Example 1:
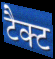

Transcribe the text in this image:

टैक्ट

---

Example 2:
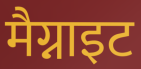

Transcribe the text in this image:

मैग्नाइट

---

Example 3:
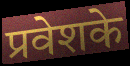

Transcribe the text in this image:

प्रवेशके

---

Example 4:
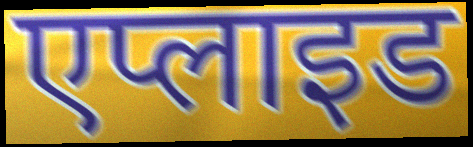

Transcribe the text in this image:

एप्लाइड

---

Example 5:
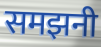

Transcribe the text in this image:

समझनी